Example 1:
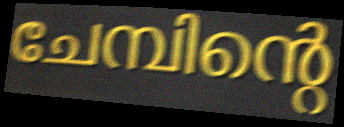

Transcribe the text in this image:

ചേമ്പിന്റെ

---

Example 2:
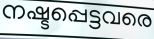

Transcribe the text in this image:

നഷ്ടപ്പെട്ടവരെ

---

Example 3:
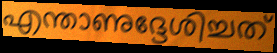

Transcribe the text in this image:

എന്താണുദ്ദേശിച്ചത്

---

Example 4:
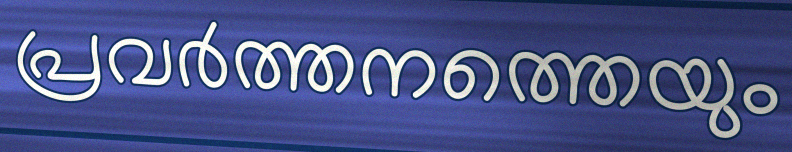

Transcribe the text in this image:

പ്രവർത്തനത്തെയും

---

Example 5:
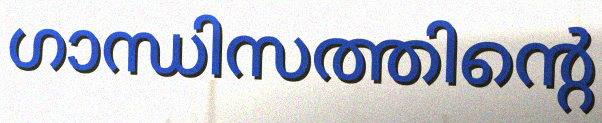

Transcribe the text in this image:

ഗാന്ധിസത്തിന്റെ